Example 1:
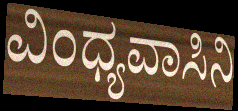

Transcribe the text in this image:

ವಿಂಧ್ಯವಾಸಿನಿ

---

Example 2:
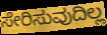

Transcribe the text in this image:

ಸೇರಿಸುವುದಿಲ್ಲ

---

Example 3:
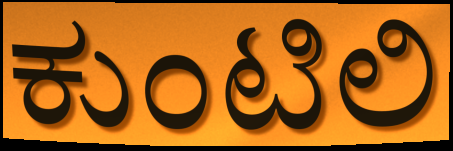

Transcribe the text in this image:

ಕುಂಟಿಲಿ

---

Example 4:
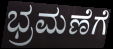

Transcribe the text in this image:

ಭ್ರಮಣೆಗೆ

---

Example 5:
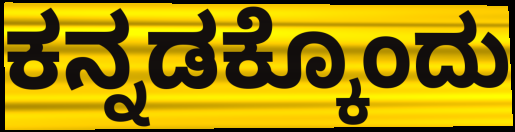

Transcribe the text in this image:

ಕನ್ನಡಕ್ಕೊಂದು